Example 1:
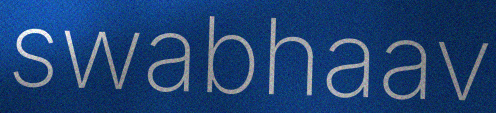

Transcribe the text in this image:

swabhaav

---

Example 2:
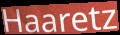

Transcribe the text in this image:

Haaretz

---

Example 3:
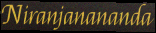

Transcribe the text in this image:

Niranjanananda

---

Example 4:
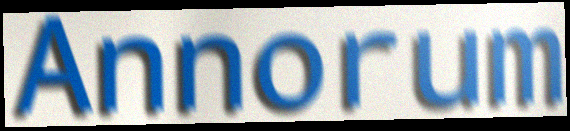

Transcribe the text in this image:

Annorum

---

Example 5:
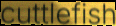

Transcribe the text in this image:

cuttlefish